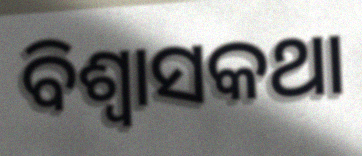
ବିଶ୍ଵାସକଥା